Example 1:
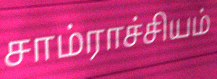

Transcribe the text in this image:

சாம்ராச்சியம்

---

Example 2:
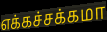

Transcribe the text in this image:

எக்கச்சக்கமா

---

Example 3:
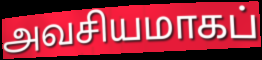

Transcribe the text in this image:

அவசியமாகப்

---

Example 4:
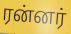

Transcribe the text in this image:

ரன்னர்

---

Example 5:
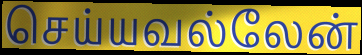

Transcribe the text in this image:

செய்யவல்லேன்